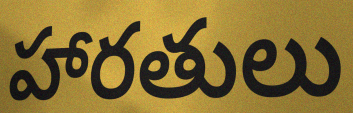
హారతులు